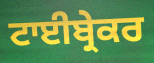
ਟਾਈਬ੍ਰੇਕਰ